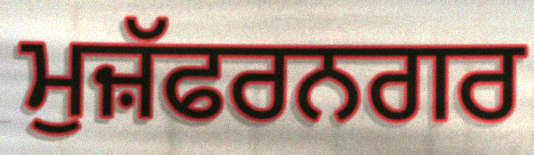
ਮੁਜ਼ੱਫਰਨਗਰ